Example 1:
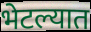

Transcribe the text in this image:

भेटल्यात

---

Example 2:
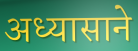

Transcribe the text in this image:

अध्यासाने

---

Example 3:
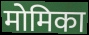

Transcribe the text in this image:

मोमिका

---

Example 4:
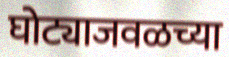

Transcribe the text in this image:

घोट्याजवळच्या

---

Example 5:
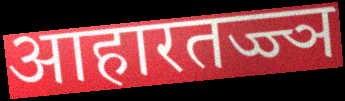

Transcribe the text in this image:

आहारतज्ज्ञ